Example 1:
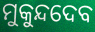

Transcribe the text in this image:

ମୁକୁନ୍ଦଦେବ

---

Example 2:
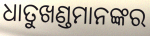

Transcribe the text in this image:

ଧାତୁଖଣ୍ଡମାନଙ୍କର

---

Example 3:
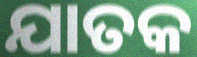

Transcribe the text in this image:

ଯାତକ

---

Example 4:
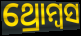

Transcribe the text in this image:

ଥ୍ରୋମ୍ବସ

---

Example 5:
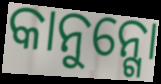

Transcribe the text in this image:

କାନୁନ୍ଗୋ